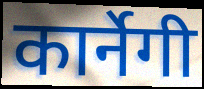
कार्नेगी